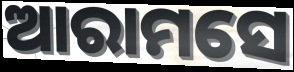
ଆରାମସେ